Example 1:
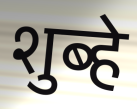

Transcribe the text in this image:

शुब्हे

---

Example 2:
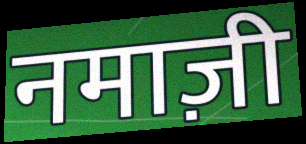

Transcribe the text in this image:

नमाज़ी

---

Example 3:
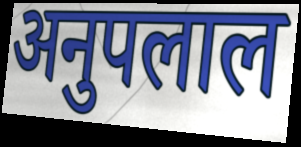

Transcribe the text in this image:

अनुपलाल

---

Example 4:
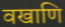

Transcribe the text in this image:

वखाणि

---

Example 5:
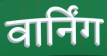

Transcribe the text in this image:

वार्निंग